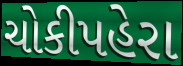
ચોકીપહેરા